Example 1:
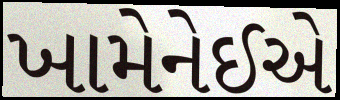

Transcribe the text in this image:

ખામેનેઈએ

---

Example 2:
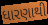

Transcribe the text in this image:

ધારણાથી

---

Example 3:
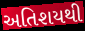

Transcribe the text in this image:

અતિશયથી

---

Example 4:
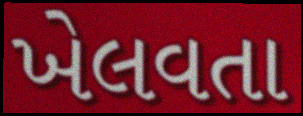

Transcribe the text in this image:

ખેલવતા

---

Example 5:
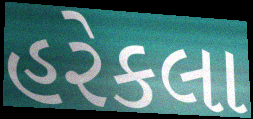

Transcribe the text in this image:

હરેકલા